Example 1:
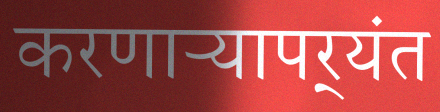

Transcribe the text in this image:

करणाऱ्यापर्यंत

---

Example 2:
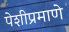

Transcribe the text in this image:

पेशीप्रमाणे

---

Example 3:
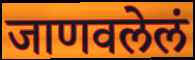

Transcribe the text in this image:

जाणवलेलं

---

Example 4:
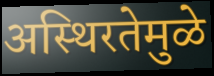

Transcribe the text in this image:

अस्थिरतेमुळे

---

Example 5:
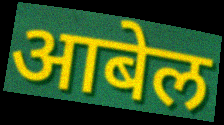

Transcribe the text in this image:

आबेल